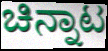
ಚಿನ್ನಾಟ